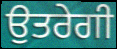
ਉਤਰੇਗੀ